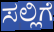
ಸಲ್ಲಿಗೆ